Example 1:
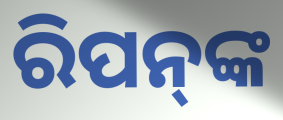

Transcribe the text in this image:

ରିପନ୍‍ଙ୍କ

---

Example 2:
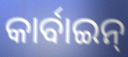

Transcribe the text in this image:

କାର୍ବାଇନ୍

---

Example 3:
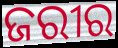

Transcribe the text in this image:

ଜରୀର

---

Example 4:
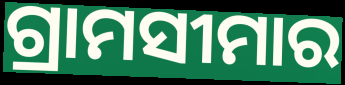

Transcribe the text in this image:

ଗ୍ରାମସୀମାର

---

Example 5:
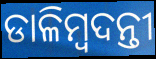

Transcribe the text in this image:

ଡାଳିମ୍ବଦନ୍ତୀ